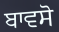
ਬਾਵਸੋ